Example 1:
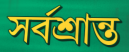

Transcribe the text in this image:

সৰ্বশ্ৰান্ত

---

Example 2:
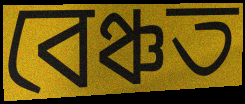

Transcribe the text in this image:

বেঞ্চত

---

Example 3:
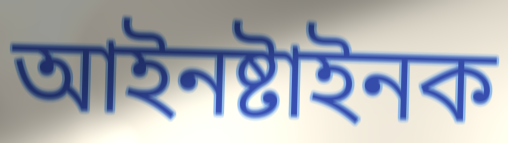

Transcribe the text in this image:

আইনষ্টাইনক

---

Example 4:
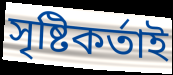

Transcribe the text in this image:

সৃষ্টিকৰ্তাই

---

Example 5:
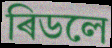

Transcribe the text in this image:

ৰিডলে